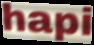
hapi